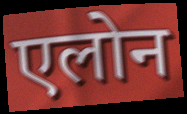
एलोन